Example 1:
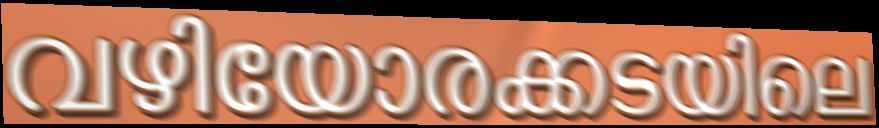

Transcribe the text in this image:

വഴിയോരക്കടയിലെ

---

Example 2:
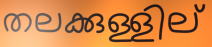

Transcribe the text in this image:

തലക്കുള്ളില്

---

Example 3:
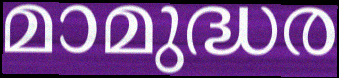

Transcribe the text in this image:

മാമുദ്ധര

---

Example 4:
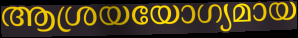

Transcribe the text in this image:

ആശ്രയയോഗ്യമായ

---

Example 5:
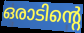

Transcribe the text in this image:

ഒരാടിന്റെ